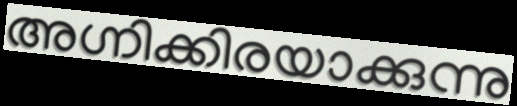
അഗ്നിക്കിരയാക്കുന്നു